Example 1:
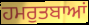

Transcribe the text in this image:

ਹਮਰੁਤਬਾਆਂ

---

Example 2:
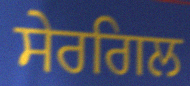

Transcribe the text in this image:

ਸੇਰਗਿਲ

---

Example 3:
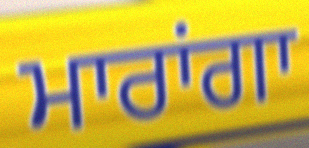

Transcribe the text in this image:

ਮਾਰਾਂਗਾ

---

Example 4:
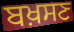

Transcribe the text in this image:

ਬਖ਼ਸਣ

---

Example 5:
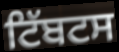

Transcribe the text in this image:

ਟਿੱਬਟਸ